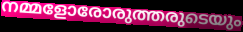
നമ്മളോരോരുത്തരുടെയും